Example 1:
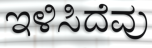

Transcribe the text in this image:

ಇಳಿಸಿದೆವು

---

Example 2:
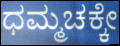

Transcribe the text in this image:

ಧಮ್ಮಚಕ್ಕೇ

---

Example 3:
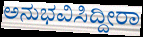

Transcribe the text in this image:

ಅನುಭವಿಸಿದ್ದೀರಾ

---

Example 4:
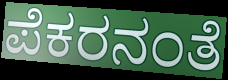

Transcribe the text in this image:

ಪೆಕರನಂತೆ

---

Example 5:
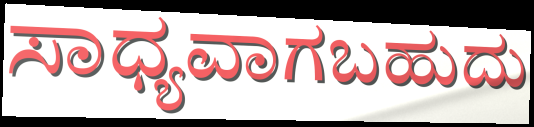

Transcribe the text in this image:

ಸಾಧ್ಯವಾಗಬಹುದು